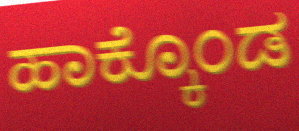
ಹಾಕ್ಕೊಂಡ